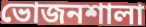
ভোজনশালা